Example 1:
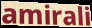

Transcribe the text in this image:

amirali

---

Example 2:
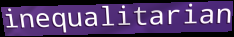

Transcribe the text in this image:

inequalitarian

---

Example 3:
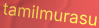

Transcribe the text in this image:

tamilmurasu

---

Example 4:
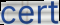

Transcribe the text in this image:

cert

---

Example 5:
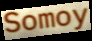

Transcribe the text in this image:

Somoy